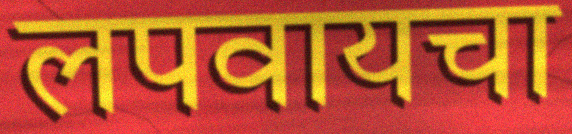
लपवायचा